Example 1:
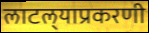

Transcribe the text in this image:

लाटल्याप्रकरणी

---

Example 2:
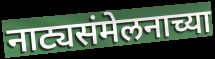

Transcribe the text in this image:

नाट्यसंमेलनाच्या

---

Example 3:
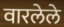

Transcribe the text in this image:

वारलेले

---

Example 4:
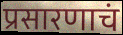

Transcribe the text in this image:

प्रसारणाचं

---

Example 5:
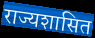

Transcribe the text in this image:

राज्यशासित